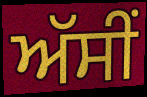
ਅੱਸੀਂ